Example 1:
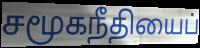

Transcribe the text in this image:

சமூகநீதியைப்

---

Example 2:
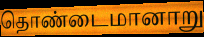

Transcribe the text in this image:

தொண்டைமானாறு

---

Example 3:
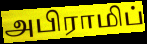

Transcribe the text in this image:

அபிராமிப்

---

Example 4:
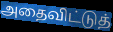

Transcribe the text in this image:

அதைவிட்டுத்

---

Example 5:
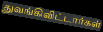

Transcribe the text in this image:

துவங்கிவிட்டார்கள்